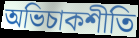
অভিচাকশীতি